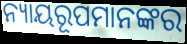
ନ୍ୟାୟରୂପମାନଙ୍କର